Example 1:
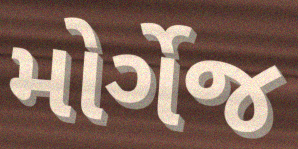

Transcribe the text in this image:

મોર્ગેજ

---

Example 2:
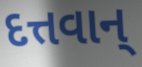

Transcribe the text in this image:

દત્તવાન્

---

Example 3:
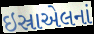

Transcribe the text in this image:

ઇસ્રાએલનાં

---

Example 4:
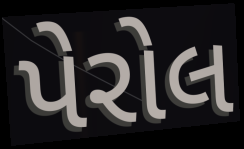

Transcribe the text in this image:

પેરોલ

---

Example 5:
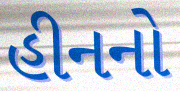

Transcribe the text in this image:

હીનનો